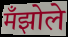
मँझोले